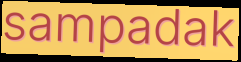
sampadak